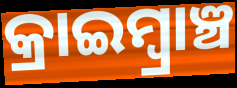
କ୍ରାଇମ୍ବ୍ରାଞ୍ଚ